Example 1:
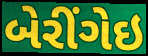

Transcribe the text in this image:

બેરીંગેઇ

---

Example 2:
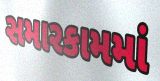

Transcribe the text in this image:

સમારકામમાં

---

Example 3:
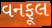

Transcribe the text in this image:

વનફૂલ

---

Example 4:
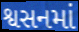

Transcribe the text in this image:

શ્વસનમાં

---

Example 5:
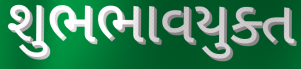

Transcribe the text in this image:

શુભભાવયુક્ત